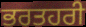
ਭਰਤਹਰੀ